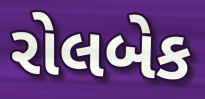
રોલબેક